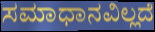
ಸಮಾಧಾನವಿಲ್ಲದೆ